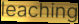
leaching